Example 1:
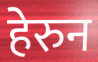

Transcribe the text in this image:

हेरुन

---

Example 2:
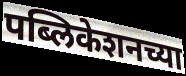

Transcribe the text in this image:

पब्लिकेशनच्या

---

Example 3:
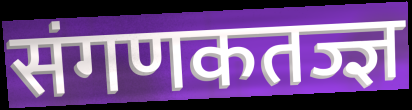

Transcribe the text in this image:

संगणकतज्ज्ञ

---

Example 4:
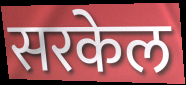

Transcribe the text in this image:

सरकेल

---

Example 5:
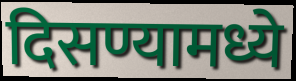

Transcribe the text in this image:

दिसण्यामध्ये